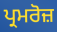
ਪ੍ਰਮਰੋਜ਼